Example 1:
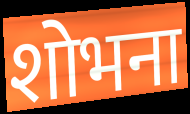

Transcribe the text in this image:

शोभना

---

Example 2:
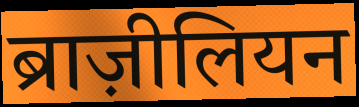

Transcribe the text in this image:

ब्राज़ीलियन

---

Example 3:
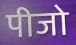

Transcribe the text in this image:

पीजो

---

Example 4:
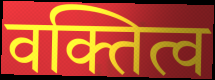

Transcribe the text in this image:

वक्तित्व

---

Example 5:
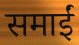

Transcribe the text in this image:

समाईं